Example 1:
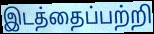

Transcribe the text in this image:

இடத்தைப்பற்றி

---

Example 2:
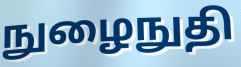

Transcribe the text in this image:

நுழைநுதி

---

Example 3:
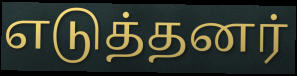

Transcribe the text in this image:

எடுத்தனர்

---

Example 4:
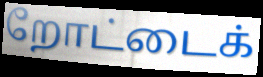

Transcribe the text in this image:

றோட்டைக்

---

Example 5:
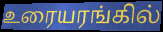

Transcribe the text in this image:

உரையரங்கில்